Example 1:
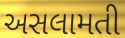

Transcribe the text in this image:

અસલામતી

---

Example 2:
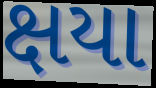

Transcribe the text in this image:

ક્ષયા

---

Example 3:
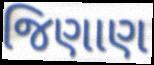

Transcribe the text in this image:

જિણાણ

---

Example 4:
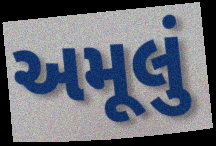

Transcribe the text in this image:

અમૂલું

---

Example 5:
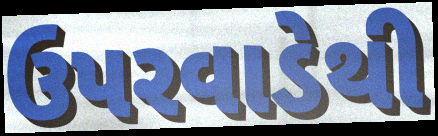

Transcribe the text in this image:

ઉપરવાડેથી